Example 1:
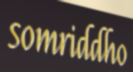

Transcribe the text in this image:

somriddho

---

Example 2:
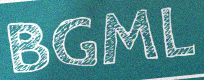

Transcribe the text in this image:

BGML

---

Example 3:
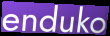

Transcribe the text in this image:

enduko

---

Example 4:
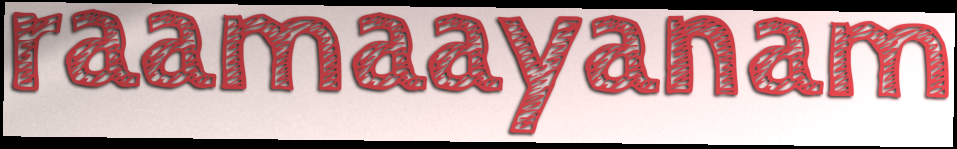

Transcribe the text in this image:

raamaayanam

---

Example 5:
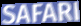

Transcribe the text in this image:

SAFARI